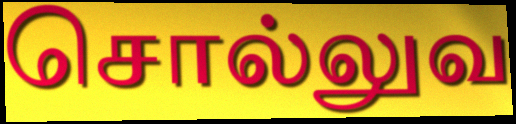
சொல்லுவ